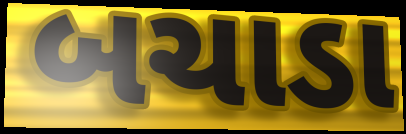
બચાડા